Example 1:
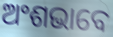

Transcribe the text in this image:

ଅଂଶଭାବେ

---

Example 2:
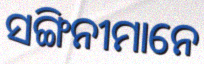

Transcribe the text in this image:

ସଙ୍ଗିନୀମାନେ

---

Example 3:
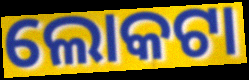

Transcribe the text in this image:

ଲୋକଟା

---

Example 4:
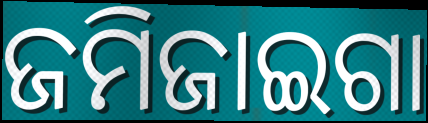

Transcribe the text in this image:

ଜମିଜାଇଗା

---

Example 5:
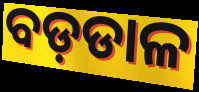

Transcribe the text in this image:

ବଡ଼ଡାଳ